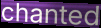
chanted